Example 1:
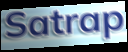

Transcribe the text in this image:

Satrap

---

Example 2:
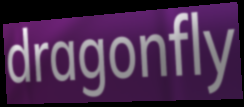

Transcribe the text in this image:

dragonfly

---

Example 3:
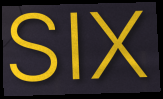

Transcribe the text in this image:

SIX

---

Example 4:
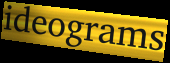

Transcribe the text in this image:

ideograms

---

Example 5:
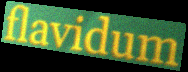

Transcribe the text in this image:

flavidum